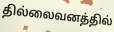
தில்லைவனத்தில்